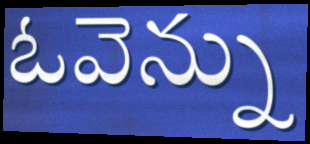
ఓవెన్ను